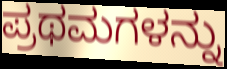
ಪ್ರಥಮಗಳನ್ನು